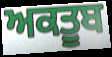
ਅਕਤੂਬ